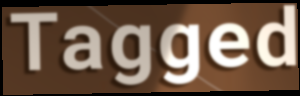
Tagged